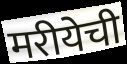
मरीयेची